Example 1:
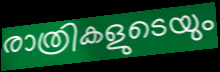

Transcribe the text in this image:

രാത്രികളുടെയും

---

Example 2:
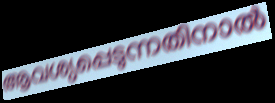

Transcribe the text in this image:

ആവശ്യപ്പെടുന്നതിനാൽ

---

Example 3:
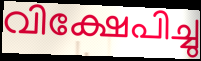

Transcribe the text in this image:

വിക്ഷേപിച്ചു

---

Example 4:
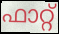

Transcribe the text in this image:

ഫാറ്റ്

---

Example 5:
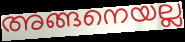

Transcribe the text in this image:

അങ്ങനെയല്ല